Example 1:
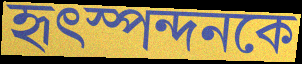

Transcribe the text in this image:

হৃৎস্পন্দনকে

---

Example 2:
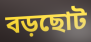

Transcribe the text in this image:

বড়ছোট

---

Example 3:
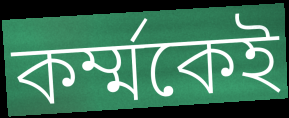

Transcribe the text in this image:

কর্ম্মকেই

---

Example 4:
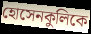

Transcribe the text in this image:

হোসেনকুলিকে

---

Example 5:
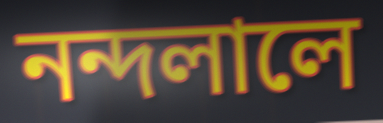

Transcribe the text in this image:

নন্দলালে